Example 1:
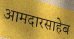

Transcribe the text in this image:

आमदारसाहेब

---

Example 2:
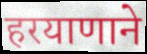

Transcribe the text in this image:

हरयाणाने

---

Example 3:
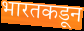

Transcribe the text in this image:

भारतकडून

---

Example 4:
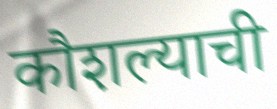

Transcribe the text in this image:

कौशल्याची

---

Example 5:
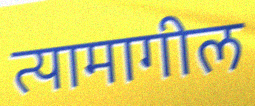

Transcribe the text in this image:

त्यामागील